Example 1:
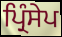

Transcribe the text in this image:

ਪ੍ਰਿੰਸੇਪ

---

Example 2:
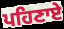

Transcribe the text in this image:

ਪਹਿਣਾਏ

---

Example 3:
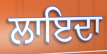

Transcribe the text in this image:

ਲਾਇਦਾ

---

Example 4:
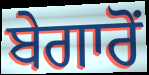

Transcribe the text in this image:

ਬੇਗਾਰੋਂ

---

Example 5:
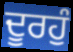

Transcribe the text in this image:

ਦੂਰਹੁੰ